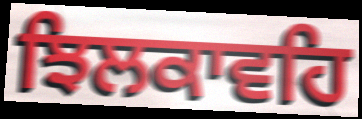
ਝਿਲਕਾਵਹਿ